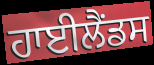
ਹਾਈਲੈਂਡਸ